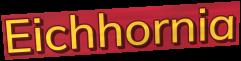
Eichhornia